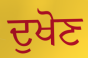
ਦੁਖੋਣ